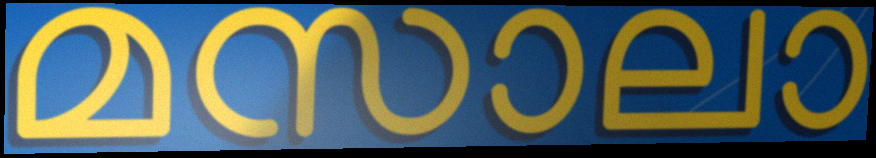
മസാലാ